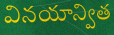
వినయాన్విత